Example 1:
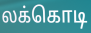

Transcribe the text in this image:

லக்கொடி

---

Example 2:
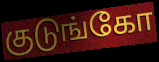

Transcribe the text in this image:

குடுங்கோ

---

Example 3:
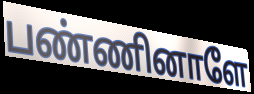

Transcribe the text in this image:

பண்ணினாளே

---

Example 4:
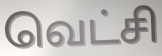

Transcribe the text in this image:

வெட்சி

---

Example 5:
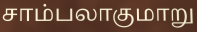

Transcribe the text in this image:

சாம்பலாகுமாறு